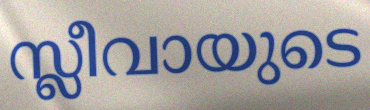
സ്ലീവായുടെ